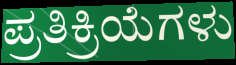
ಪ್ರತಿಕ್ರಿಯೆಗಳು